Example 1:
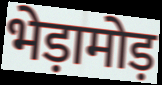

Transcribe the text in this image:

भेड़ामोड़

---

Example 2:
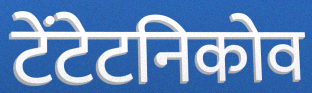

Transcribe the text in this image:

टेंटेटनिकोव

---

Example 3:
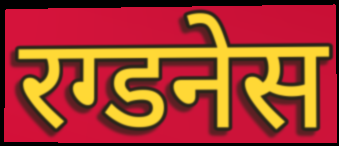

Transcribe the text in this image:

रग्डनेस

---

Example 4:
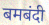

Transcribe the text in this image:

बमबंदी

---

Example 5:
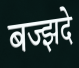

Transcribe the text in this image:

बज्झदे